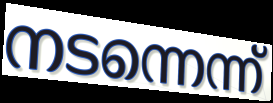
നടന്നെന്ന്